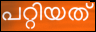
പറ്റിയത്